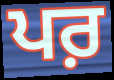
ਪਰ਼